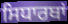
ਸਿਧਾਰਥਾਂ